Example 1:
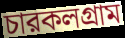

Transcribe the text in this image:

চারকলগ্রাম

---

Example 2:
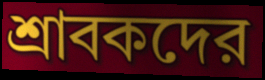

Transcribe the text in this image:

শ্রাবকদের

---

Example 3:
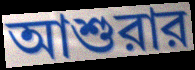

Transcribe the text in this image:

আশুরার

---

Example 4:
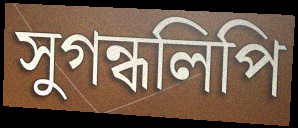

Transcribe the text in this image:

সুগন্ধলিপি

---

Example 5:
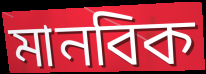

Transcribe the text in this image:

মানবিক